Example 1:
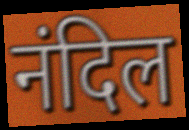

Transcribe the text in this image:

नंदिल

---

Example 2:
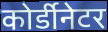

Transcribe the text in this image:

कोर्डीनेटर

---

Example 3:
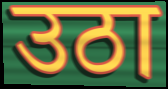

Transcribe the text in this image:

उठा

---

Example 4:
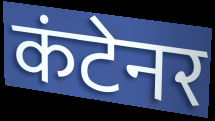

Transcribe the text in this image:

कंटेनर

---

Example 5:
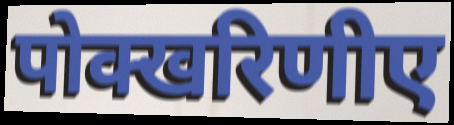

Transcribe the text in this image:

पोक्खरिणीए